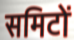
समिटों